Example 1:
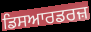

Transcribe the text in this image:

ਡਿਸਆਰਡਰਜ਼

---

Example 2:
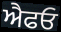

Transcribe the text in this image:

ਐਫਓ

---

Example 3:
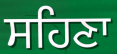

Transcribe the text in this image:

ਸਹਿਣਾ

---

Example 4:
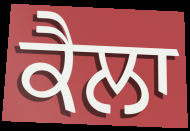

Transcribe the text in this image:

ਕੈਲਾ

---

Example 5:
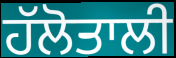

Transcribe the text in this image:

ਹੱਲੋਤਾਲੀ